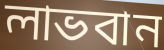
লাভবান